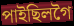
পাইছিলগৈ